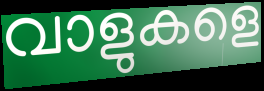
വാളുകളെ